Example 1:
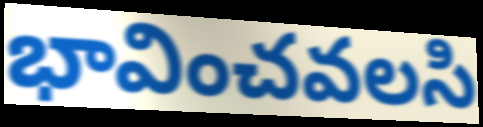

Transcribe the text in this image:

భావించవలసి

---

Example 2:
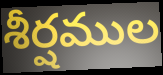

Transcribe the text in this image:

శీర్షముల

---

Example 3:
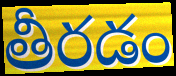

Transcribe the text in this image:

తీరడం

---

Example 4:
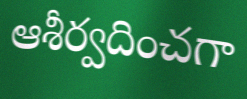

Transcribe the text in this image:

ఆశీర్వదించగా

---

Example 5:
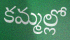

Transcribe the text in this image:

కమ్మల్లో